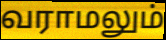
வராமலும்